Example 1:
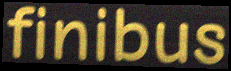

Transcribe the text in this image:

finibus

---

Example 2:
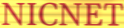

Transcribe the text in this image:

NICNET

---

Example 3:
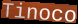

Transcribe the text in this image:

Tinoco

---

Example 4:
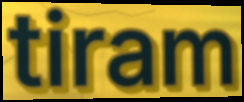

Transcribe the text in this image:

tiram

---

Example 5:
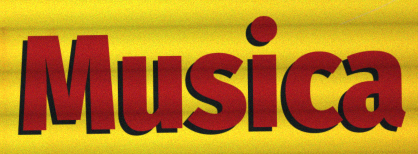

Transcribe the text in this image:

Musica